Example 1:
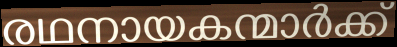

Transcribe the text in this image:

രഥനായകന്മാർക്ക്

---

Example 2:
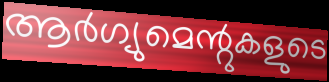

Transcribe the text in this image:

ആർഗ്യുമെന്റുകളുടെ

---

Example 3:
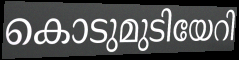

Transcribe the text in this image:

കൊടുമുടിയേറി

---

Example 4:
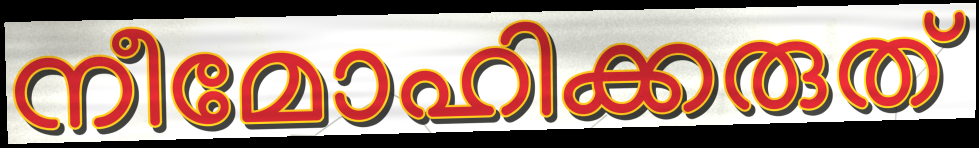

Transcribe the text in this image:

നീമോഹിക്കരുത്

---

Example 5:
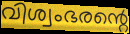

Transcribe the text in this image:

വിശ്വംഭരന്റെ